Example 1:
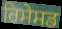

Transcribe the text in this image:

ਰਿਸੇਸਡ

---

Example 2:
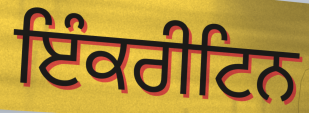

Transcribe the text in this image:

ਇੰਕਰੀਟਿਨ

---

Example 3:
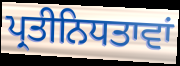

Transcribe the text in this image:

ਪ੍ਰਤੀਨਿਧਤਾਵਾਂ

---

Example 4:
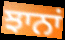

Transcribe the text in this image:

ਝਾਨਾਂ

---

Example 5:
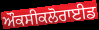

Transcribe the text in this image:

ਔਕਸੀਕਲੋਰਾਈਡ